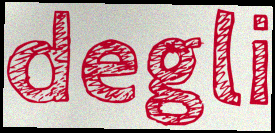
degli